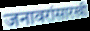
जनावरांसारखी